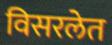
विसरलेत